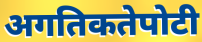
अगतिकतेपोटी